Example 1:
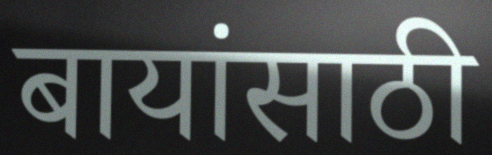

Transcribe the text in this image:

बायांसाठी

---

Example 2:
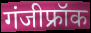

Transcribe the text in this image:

गंजीफ्रॉक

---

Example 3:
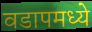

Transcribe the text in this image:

वडापमध्ये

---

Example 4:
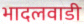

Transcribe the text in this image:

भादलवाडी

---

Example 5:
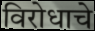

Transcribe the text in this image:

विरोधाचे